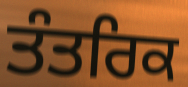
ਤੰਤਰਿਕ